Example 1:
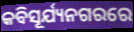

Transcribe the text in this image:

କବିସୂର୍ଯ୍ୟନଗରରେ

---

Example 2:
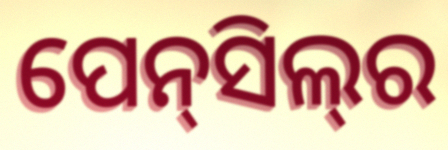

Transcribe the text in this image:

ପେନ୍‌ସିଲ୍‌ର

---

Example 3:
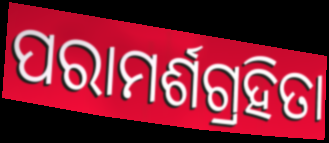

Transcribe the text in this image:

ପରାମର୍ଶଗ୍ରହିତା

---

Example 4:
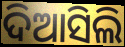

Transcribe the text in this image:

ଦିଆସିଲି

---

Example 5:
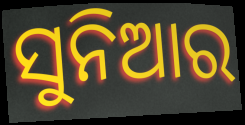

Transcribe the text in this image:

ସୁନିଆର